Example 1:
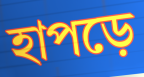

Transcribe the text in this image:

হাপড়ে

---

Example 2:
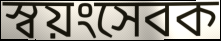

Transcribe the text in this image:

স্বয়ংসেবক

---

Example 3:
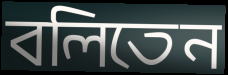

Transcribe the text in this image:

বলিতেন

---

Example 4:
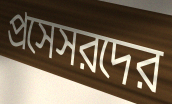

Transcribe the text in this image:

প্রসেসরদের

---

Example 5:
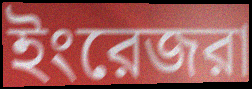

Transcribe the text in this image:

ইংরেজরা